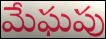
మేఘపు